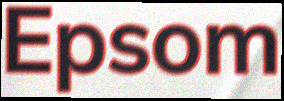
Epsom